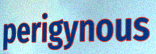
perigynous